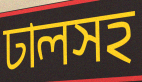
ঢালসহ